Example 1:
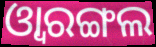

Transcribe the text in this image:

ଓ୍ବାରଙ୍ଗଲ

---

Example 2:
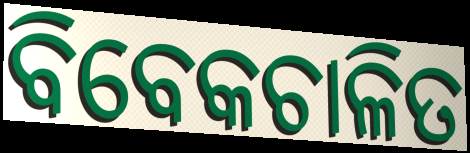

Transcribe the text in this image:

ବିବେକଚାଳିତ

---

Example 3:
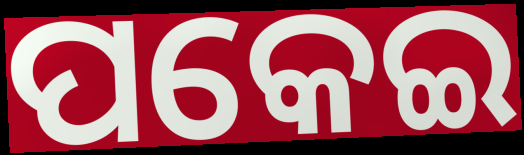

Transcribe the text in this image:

ପକେଇ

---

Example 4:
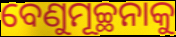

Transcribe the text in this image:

ବେଣୁମୂଚ୍ଛନାକୁ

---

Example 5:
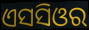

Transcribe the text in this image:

ଏସସିଓର